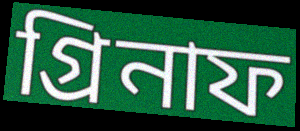
গ্রিনাফ